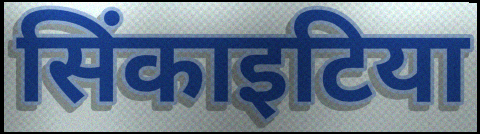
सिंकाइटिया